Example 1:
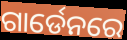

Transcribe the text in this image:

ଗାର୍ଡେନରେ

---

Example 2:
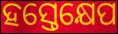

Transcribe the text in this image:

ହସ୍ତେକ୍ଷେପ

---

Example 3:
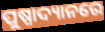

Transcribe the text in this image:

ପୁଷ୍ପାଦ୍ୟାନରେ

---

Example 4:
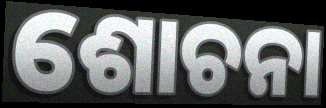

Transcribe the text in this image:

ଶୋଚନା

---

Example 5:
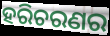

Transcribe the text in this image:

ହରିଚରଣର